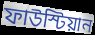
ফাউস্টিয়ান